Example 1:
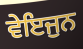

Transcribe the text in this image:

ਵੇਇਜੁਨ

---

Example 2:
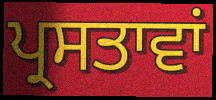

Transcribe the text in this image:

ਪ੍ਰਸਤਾਵਾਂ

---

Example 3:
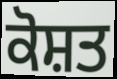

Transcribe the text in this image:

ਕੋਸ਼ਤ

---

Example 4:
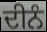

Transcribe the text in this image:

ਦੀਨੰ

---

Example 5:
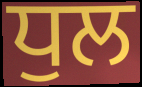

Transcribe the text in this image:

ਧੁਲ